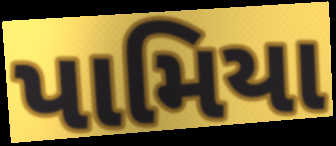
પામિયા